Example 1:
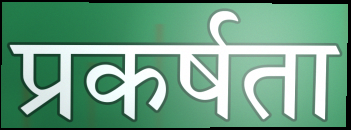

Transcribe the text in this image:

प्रकर्षता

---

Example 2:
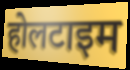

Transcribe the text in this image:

होलटाइम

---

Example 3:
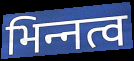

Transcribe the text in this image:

भिन्नत्व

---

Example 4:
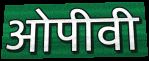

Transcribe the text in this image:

ओपीवी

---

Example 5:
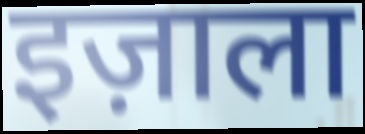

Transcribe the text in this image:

इज़ाला